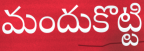
మందుకొట్టి